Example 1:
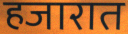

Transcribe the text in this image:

हजारात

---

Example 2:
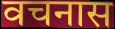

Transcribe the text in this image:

वचनास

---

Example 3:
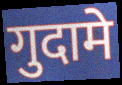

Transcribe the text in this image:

गुदामे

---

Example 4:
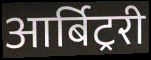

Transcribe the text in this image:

आर्बिट्ररी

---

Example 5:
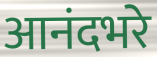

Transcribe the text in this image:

आनंदभरे